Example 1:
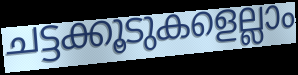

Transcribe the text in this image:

ചട്ടക്കൂടുകളെല്ലാം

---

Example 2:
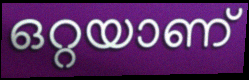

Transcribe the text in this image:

ഒറ്റയാണ്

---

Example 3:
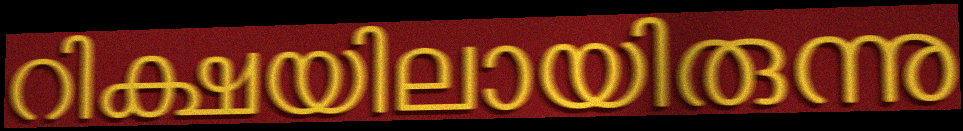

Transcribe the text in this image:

റിക്ഷയിലായിരുന്നു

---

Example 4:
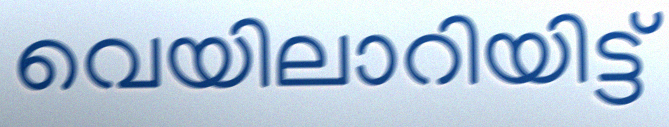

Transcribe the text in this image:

വെയിലാറിയിട്ട്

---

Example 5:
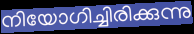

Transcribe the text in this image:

നിയോഗിച്ചിരിക്കുന്നു